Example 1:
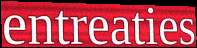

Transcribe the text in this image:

entreaties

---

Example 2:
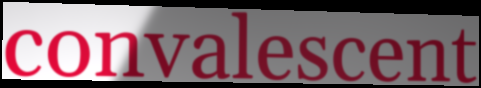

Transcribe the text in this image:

convalescent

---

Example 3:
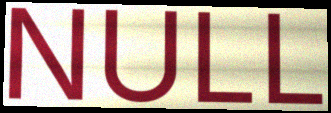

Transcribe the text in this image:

NULL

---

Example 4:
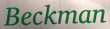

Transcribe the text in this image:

Beckman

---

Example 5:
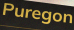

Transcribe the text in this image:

Puregon